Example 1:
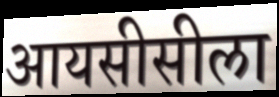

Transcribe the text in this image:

आयसीसीला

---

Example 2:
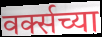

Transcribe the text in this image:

वर्क्‍सच्या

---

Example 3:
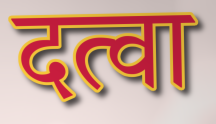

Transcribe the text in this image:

दत्वा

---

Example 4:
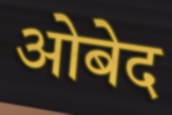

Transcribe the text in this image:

ओबेद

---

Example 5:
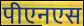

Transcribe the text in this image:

पीएनएस